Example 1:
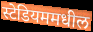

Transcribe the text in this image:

स्टेडियममधील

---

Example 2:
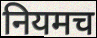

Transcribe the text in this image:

नियमच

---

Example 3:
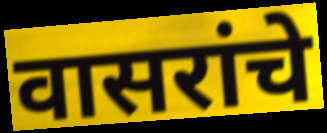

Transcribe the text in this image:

वासरांचे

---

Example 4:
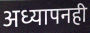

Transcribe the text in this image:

अध्यापनही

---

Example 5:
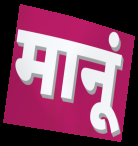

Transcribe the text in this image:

मानूं